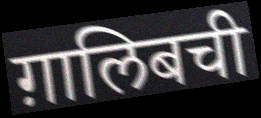
ग़ालिबची